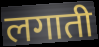
लगाती